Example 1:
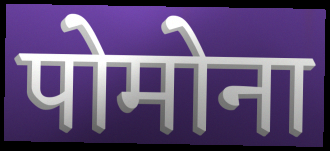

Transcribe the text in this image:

पोमोना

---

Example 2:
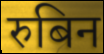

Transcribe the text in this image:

रुबिन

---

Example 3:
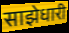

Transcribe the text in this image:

साझेधारी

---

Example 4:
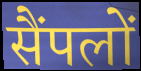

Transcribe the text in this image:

सैंपलों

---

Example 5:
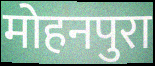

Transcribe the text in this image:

मोहनपुरा